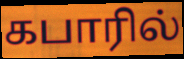
கபாரில்